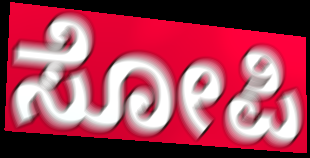
ಸೋಪಿ